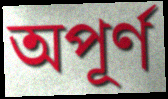
অপূর্ণ